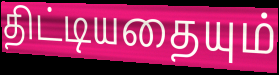
திட்டியதையும்